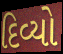
દિવ્યો